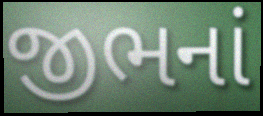
જીભનાં